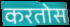
करतोस